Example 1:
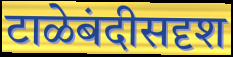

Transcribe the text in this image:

टाळेबंदीसदृश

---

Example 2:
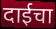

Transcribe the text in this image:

दाईचा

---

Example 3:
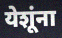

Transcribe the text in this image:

येशूंना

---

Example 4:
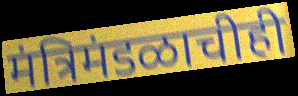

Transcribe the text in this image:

मंत्रिमंडळाचीही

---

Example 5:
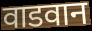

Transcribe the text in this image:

वाडवान